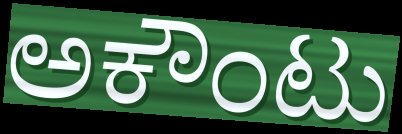
ಅಕೌಂಟು